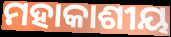
ମହାକାଶୀୟ